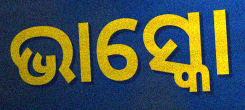
ଭାସ୍କୋ